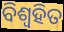
ବିଶ୍ଵହିତ